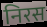
निरस